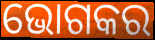
ଭୋଗକର